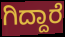
ಗಿದ್ದಾರೆ